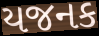
યજનક